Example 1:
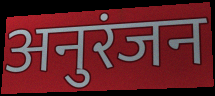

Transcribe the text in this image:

अनुरंजन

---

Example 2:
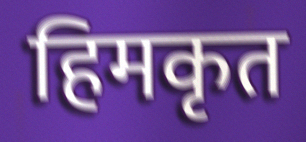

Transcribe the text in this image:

हिमकृत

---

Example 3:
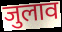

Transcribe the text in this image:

जुलाव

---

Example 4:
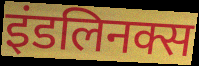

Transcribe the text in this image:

इंडलिनक्स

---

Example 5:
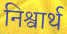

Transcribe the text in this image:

निश्वार्थ